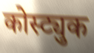
कोस्ट्युक